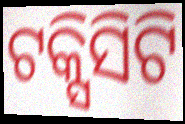
ଟକ୍ସିସିଟି